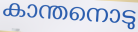
കാന്തനൊടു